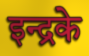
इन्द्रके